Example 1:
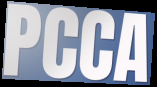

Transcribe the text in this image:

PCCA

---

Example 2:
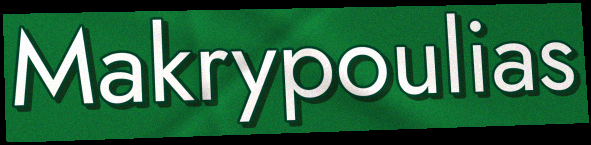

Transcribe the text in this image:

Makrypoulias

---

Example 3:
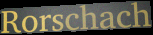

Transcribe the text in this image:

Rorschach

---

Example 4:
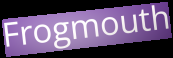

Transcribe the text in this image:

Frogmouth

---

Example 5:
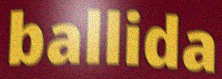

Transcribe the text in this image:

ballida